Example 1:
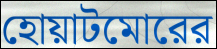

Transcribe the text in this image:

হোয়াটমোরের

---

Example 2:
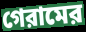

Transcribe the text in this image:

গেরামের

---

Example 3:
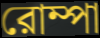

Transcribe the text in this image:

রোম্পা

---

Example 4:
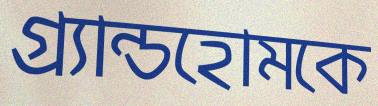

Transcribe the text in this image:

গ্র্যান্ডহোমকে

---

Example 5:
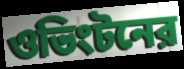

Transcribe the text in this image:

ওভিংটনের